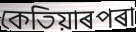
কেতিয়াৰপৰা